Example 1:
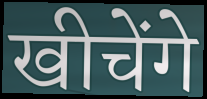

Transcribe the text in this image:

खीचेंगे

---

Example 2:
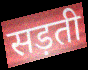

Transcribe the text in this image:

सड़ती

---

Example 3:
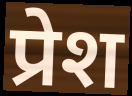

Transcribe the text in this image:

प्रेश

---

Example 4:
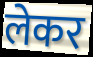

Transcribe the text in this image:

लेकर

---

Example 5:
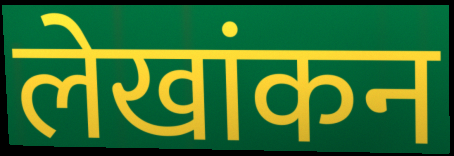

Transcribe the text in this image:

लेखांकन